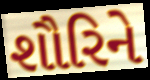
શૌરિને